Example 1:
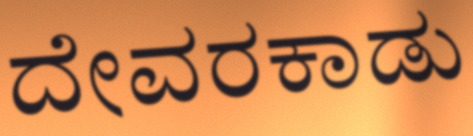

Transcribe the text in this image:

ದೇವರಕಾಡು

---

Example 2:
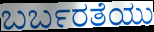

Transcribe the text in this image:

ಬರ್ಬರತೆಯು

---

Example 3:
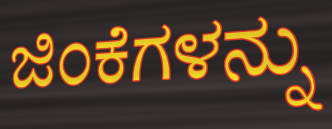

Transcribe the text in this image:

ಜಿಂಕೆಗಳನ್ನು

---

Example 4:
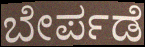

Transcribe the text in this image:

ಬೇರ್ಪಡೆ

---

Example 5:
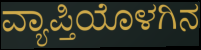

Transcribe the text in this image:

ವ್ಯಾಪ್ತಿಯೊಳಗಿನ